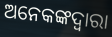
ଅନେକଙ୍କଦ୍ୱାରା